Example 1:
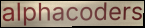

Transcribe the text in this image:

alphacoders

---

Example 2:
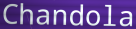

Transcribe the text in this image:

Chandola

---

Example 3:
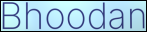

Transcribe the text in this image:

Bhoodan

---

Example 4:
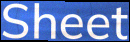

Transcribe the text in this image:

Sheet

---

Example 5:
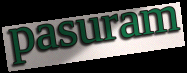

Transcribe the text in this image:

pasuram